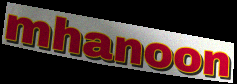
mhanoon